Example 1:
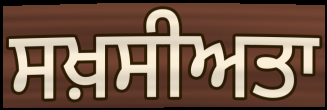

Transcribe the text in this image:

ਸਖ਼ਸੀਅਤਾ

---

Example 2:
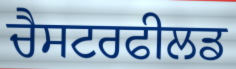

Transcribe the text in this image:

ਚੈਸਟਰਫੀਲਡ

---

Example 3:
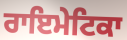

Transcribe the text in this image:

ਰਾਇਮੇਟਿਕਾ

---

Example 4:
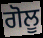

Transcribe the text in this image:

ਗੋਲੂ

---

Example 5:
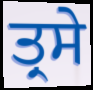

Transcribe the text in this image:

ਤ੍ਰਸੇ